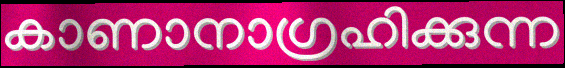
കാണാനാഗ്രഹിക്കുന്ന